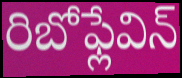
రిబోఫ్లేవిన్